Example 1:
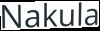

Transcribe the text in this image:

Nakula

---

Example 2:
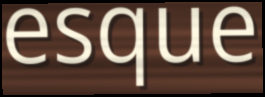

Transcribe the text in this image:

esque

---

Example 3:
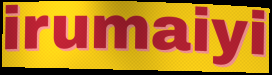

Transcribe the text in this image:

irumaiyi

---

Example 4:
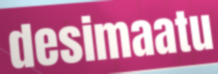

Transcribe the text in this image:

desimaatu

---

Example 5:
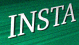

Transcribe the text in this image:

INSTA